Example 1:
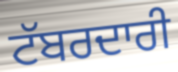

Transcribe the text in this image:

ਟੱਬਰਦਾਰੀ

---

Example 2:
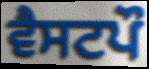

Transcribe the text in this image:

ਵੈਸਟਪੌ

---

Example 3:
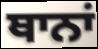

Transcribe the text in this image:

ਥਾਨਾਂ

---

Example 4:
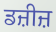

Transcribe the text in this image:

ਡਜ਼ੀਜ਼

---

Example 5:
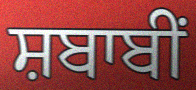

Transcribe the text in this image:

ਸ਼ਬਾਬੀਂ